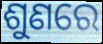
ଶୁଣରେ